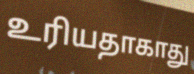
உரியதாகாது